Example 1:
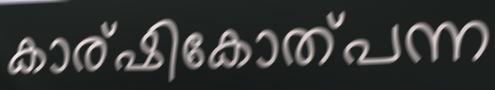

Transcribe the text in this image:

കാര്ഷികോത്പന്ന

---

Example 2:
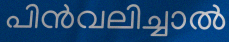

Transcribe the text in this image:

പിൻവലിച്ചാൽ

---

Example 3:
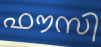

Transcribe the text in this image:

ഫൗസി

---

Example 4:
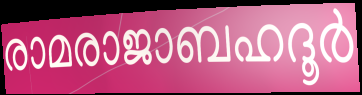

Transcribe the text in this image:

രാമരാജാബഹദൂർ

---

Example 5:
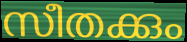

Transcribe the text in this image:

സീതക്കും